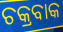
ଚକ୍ରବାକ